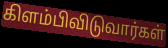
கிளம்பிவிடுவார்கள்